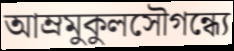
আম্রমুকুলসৌগন্ধ্যে